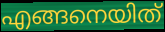
എങ്ങനെയിത്